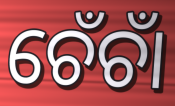
ଚେଁଚାଁ